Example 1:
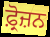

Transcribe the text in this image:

ਫ਼੍ਰੋਜ਼ਨ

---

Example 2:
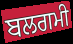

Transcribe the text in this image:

ਬਲਗਮੀ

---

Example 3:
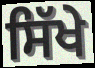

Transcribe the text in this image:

ਸਿੱਖੇ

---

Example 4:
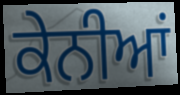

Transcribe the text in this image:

ਕੇਨੀਆਂ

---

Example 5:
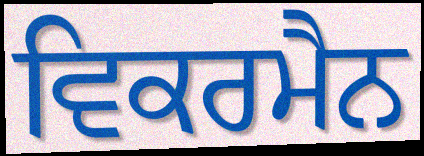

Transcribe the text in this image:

ਵਿਕਰਮੈਨ